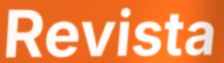
Revista